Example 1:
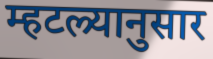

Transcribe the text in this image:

म्हटल्यानुसार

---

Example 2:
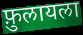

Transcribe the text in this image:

फ़ुलायला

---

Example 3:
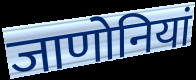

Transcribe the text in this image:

जाणोनियां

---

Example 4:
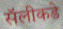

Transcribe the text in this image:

सॅलीकडे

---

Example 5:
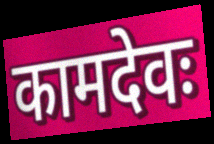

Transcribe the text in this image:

कामदेवः